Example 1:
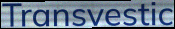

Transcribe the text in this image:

Transvestic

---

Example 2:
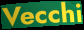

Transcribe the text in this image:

Vecchi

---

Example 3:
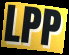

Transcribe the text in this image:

LPP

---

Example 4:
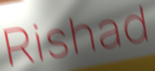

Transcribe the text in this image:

Rishad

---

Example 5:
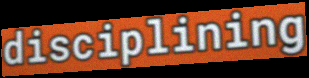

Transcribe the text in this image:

disciplining